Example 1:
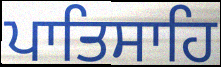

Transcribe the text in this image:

ਪਾਤਿਸਾਹਿ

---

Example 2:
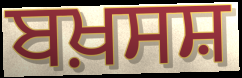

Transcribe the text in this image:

ਬਖ਼ਸਸ਼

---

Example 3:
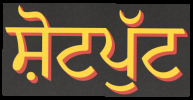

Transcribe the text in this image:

ਸ਼ੋਟਪੁੱਟ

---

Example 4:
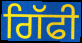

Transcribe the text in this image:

ਗਿੱਫੀ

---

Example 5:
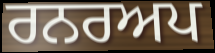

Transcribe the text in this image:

ਰਨਰਅਪ